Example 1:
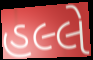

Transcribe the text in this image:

હલ્લે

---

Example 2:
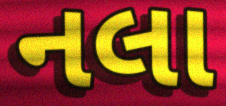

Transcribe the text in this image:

નલા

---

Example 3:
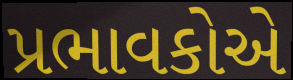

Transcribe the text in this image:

પ્રભાવકોએ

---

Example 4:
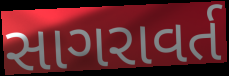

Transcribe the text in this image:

સાગરાવર્ત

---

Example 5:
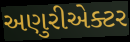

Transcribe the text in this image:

અણુરીએક્ટર